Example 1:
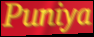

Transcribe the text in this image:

Puniya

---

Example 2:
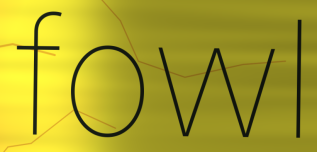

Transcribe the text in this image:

fowl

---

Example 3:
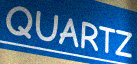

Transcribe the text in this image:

QUARTZ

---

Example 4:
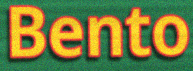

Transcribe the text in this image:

Bento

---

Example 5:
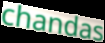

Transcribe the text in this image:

chandas